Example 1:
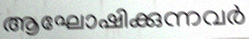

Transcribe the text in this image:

ആഘോഷിക്കുന്നവർ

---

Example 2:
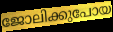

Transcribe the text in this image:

ജോലിക്കുപോയ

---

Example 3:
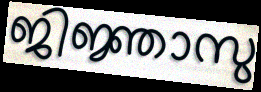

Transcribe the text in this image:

ജിജ്ഞാസു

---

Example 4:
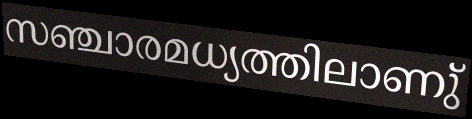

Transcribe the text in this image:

സഞ്ചാരമധ്യത്തിലാണു്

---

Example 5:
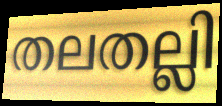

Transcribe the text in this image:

തലതല്ലി